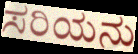
ಸರಿಯನು